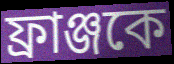
ফ্রাঞ্জকে